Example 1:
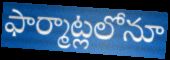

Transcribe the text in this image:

ఫార్మాట్లలోనూ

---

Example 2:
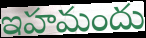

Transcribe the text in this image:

ఇహమందు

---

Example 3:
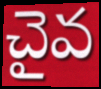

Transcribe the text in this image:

చైవ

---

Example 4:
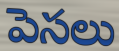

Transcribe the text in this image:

పెసలు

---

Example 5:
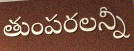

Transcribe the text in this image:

తుంపరలన్నీ